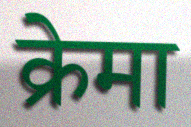
क्रेमा